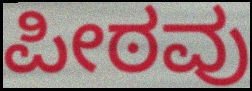
ಪೀಠವು